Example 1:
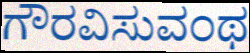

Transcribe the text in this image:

ಗೌರವಿಸುವಂಥ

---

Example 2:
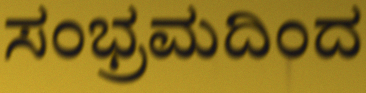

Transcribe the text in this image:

ಸಂಭ್ರಮದಿಂದ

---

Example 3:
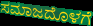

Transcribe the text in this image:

ಸಮಾಜದೊಳಗೆ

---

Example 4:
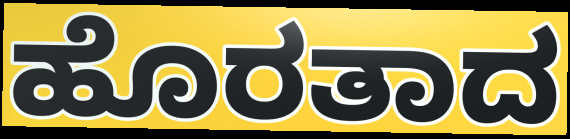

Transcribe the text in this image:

ಹೊರತಾದ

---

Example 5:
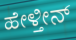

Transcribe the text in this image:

ಹೇಳ್ತೀನ್